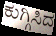
ಕುಗ್ಗಿಸಿದ